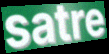
satre